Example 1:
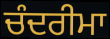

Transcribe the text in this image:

ਚੰਦਰੀਮਾ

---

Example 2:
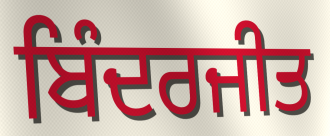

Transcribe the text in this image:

ਬਿੰਦਰਜੀਤ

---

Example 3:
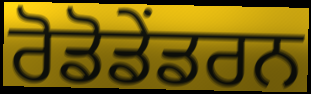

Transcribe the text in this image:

ਰੋਡੋਡੇਂਡਰਨ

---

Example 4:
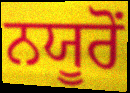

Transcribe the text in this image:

ਨਯੂਰੋਂ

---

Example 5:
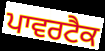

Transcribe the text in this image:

ਪਾਵਰਟੈਕ